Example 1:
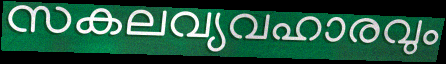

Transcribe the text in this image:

സകലവ്യവഹാരവും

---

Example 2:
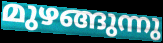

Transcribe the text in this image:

മുഴങ്ങുന്നു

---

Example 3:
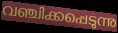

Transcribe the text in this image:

വഞ്ചിക്കപ്പെടുന്നു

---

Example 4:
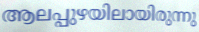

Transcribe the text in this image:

ആലപ്പുഴയിലായിരുന്നു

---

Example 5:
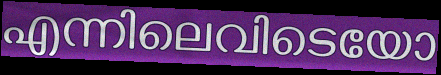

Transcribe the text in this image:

എന്നിലെവിടെയോ